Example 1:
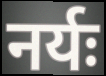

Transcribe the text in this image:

नर्यः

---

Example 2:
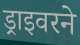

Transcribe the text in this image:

ड्राइवरने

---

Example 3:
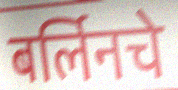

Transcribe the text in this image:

बर्लिनचे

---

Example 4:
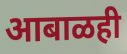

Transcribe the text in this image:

आबाळही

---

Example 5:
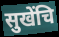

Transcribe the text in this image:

सुखेंचि